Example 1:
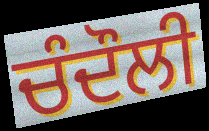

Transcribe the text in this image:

ਚੰਦੌਲੀ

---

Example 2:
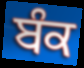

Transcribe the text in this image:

ਬੰਕ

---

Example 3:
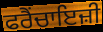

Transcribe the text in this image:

ਫਰੈਂਚਾਇਜ਼ੀ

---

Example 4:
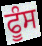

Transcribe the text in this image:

ਫੂੰਸ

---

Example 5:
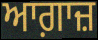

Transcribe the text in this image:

ਆਗ਼ਾਜ਼